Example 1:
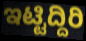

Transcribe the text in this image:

ಇಟ್ಟಿದ್ದಿರಿ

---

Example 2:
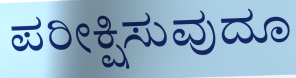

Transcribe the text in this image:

ಪರೀಕ್ಷಿಸುವುದೂ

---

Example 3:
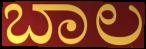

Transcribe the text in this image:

ಬಾಲ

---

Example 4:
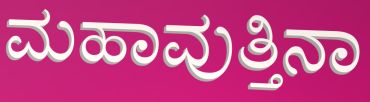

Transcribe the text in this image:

ಮಹಾವುತ್ತಿನಾ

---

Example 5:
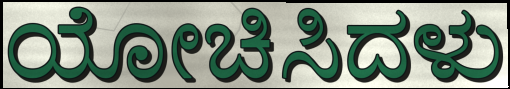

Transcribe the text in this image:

ಯೋಚಿಸಿದಳು